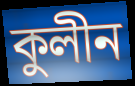
কুলীন